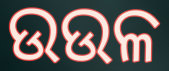
ଉଉଳ